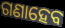
ଗଣାହେବ